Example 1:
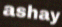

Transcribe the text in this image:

ashay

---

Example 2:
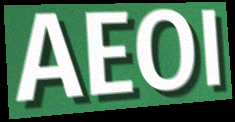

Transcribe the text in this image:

AEOI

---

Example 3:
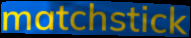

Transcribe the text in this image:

matchstick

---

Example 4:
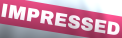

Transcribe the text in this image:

IMPRESSED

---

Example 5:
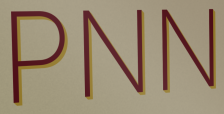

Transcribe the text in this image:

PNN